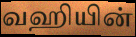
வஹியின்